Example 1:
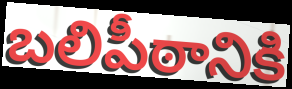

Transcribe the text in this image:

బలిపీఠానికి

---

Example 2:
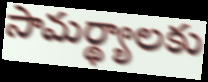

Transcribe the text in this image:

సామర్థ్యాలకు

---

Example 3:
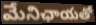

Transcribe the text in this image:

మేనిఛాయతో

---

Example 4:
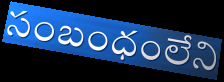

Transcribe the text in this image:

సంబంధంలేని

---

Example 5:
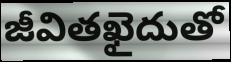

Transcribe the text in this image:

జీవితఖైదుతో